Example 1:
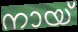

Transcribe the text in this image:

നായ്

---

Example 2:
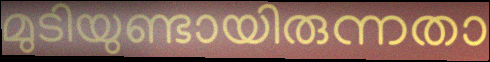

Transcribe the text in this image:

മുടിയുണ്ടായിരുന്നതാ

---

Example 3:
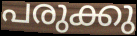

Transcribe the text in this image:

പരുക്കു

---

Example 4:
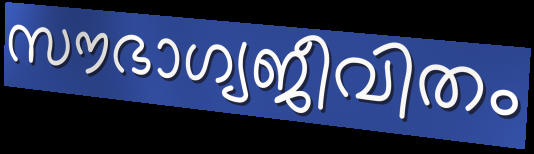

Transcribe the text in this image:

സൗഭാഗ്യജീവിതം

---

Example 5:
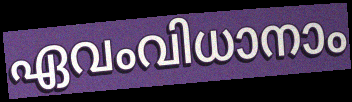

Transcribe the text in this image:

ഏവംവിധാനാം